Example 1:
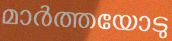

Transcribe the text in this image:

മാർത്തയോടു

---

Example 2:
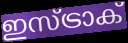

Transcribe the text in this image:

ഇസ്ട്രാക്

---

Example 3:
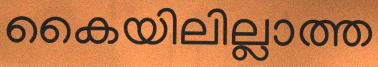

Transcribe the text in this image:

കൈയിലില്ലാത്ത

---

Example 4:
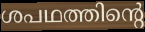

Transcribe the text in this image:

ശപഥത്തിന്റെ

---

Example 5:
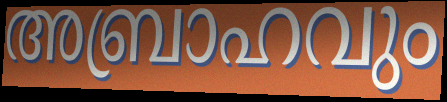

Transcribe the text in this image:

അബ്രാഹവും